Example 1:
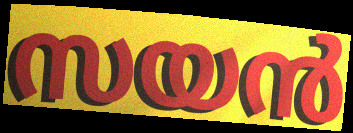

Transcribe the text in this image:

സയൻ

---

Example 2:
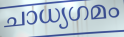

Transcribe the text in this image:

ചാധ്യഗമം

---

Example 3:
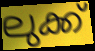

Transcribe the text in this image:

ലുക്ക്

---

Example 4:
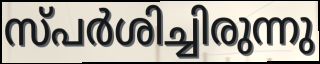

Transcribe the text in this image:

സ്പർശിച്ചിരുന്നു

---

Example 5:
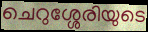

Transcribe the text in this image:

ചെറുശ്ശേരിയുടെ